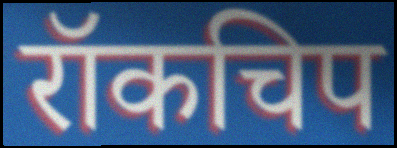
रॉकचिप